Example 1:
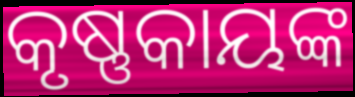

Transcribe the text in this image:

କୃଷ୍ଣକାୟଙ୍କ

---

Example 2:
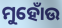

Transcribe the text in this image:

ମୁହୋଁଉ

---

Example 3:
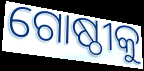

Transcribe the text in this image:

ଗୋଷ୍ଠୀକୁ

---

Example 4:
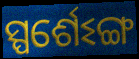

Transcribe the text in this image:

ସ୍ପର୍ଶେଽଙ୍ଗ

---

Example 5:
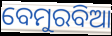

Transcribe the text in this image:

ବେମୁରବିଆ